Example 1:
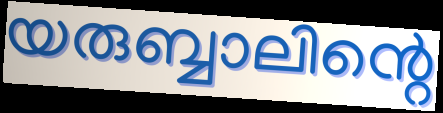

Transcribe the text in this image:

യരുബ്ബാലിന്റെ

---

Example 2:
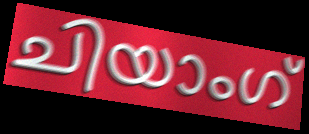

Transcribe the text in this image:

ചിയാംഗ്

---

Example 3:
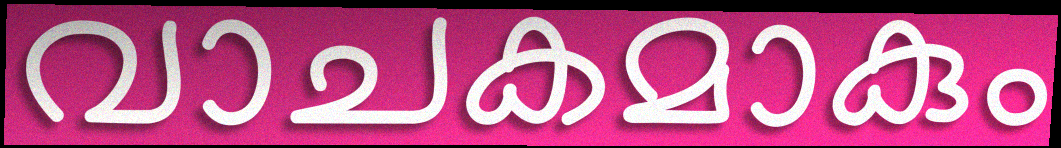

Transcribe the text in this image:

വാചകമാകും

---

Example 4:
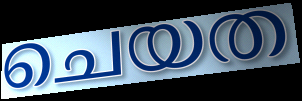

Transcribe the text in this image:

ചെയത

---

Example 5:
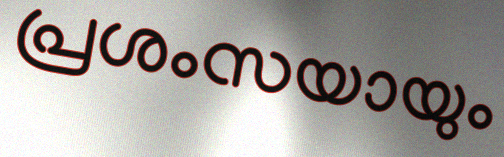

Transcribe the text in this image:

പ്രശംസയായും